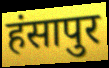
हंसापुर